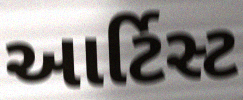
આર્ટિસ્ટ